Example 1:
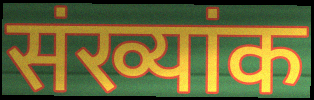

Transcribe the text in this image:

संख्यांक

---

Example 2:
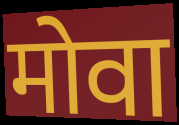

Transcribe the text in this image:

मोवा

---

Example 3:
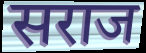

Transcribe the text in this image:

सराज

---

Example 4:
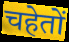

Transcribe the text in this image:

चहेतों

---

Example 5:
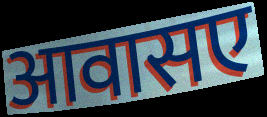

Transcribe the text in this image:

आवासए